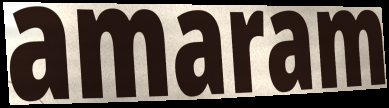
amaram